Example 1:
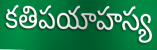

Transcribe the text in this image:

కతిపయాహస్య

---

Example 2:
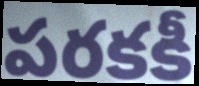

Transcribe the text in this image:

పరకకీ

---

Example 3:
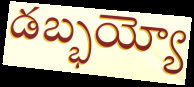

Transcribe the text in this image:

డబ్భయ్యో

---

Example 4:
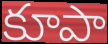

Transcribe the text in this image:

కూపా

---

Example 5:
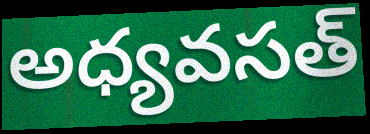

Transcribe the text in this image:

అధ్యవసత్